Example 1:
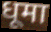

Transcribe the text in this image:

धूमा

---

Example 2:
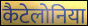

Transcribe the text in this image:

कैटेलोनिया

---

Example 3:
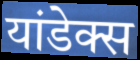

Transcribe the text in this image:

यांडेक्स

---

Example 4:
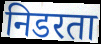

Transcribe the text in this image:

निडरता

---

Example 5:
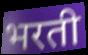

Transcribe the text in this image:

भरती